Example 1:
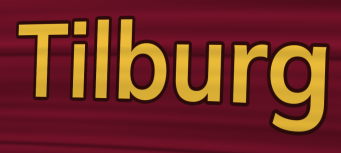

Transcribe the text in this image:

Tilburg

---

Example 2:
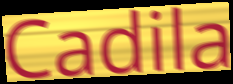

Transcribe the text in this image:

Cadila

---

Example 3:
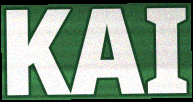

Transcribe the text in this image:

KAI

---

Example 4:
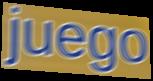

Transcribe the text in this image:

juego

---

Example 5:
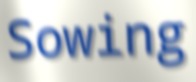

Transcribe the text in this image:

Sowing